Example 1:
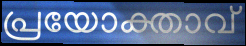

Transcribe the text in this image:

പ്രയോക്താവ്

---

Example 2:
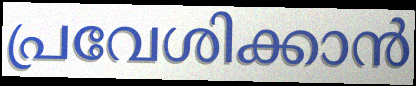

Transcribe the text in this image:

പ്രവേശിക്കാൻ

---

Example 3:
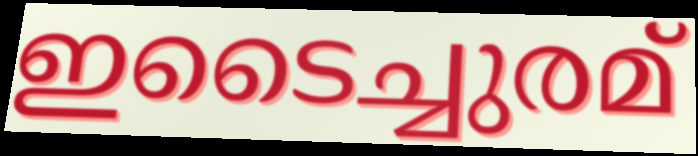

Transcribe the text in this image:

ഇടൈച്ചുരമ്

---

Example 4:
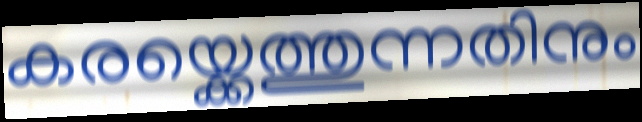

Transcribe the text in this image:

കരയ്ക്കെത്തുന്നതിനും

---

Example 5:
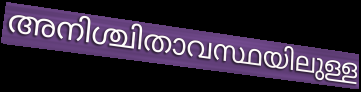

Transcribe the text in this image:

അനിശ്ചിതാവസ്ഥയിലുള്ള